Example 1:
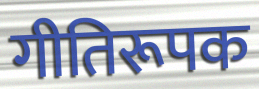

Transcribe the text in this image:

गीतिरूपक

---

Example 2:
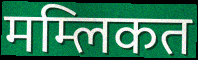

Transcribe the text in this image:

मम्लिकत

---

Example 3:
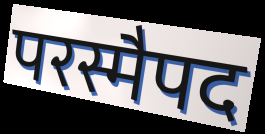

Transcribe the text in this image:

परस्मैपद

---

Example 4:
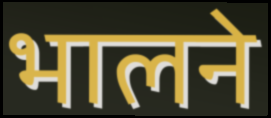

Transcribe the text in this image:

भालने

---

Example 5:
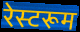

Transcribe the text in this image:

रेस्टरूम